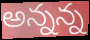
అన్నన్న